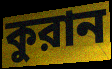
কুরান